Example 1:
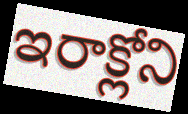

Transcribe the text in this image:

ఇరాక్లోని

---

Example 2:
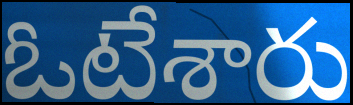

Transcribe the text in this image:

ఓటేశారు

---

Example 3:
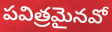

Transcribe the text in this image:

పవిత్రమైనవో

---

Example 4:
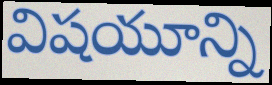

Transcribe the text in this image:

విషయూన్ని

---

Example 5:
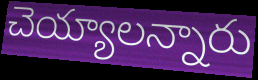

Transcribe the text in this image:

చెయ్యాలన్నారు